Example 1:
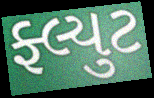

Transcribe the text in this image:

ફ્લ્યુટ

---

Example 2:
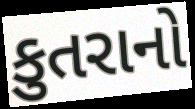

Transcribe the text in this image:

કુતરાનો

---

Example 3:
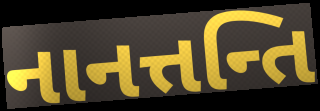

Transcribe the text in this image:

નાનત્તન્તિ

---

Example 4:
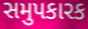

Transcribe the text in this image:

સમુપકારક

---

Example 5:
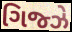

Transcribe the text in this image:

ગિજ્ઝે